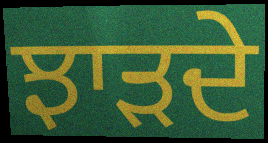
ਝਾੜਦੇ